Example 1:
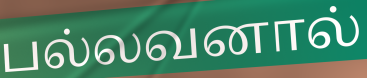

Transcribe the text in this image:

பல்லவனால்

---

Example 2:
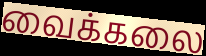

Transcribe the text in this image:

வைக்கலை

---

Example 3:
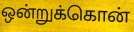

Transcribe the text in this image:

ஒன்றுக்கொன்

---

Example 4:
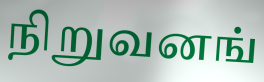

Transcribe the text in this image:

நிறுவனங்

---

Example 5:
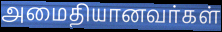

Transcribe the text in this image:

அமைதியானவர்கள்